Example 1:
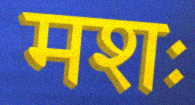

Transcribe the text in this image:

मशः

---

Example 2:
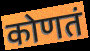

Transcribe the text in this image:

कोणतं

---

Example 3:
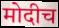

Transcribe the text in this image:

मोदीच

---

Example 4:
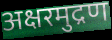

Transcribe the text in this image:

अक्षरमुद्रण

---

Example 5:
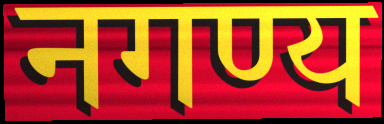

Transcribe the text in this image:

नगण्य